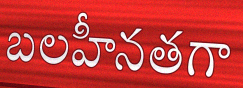
బలహీనతగా